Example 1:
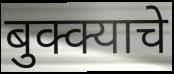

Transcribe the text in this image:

बुक्क्याचे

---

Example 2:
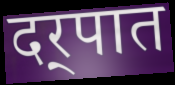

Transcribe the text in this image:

दर्पात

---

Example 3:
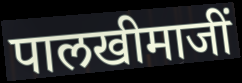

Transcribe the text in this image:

पालखीमाजीं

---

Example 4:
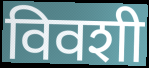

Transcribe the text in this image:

विवशी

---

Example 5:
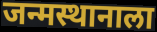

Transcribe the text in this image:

जन्मस्थानाला